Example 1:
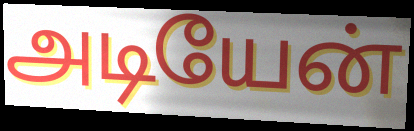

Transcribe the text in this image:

அடியேன்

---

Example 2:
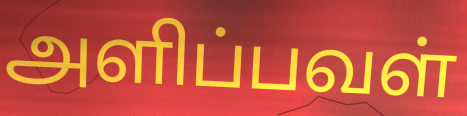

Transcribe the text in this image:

அளிப்பவள்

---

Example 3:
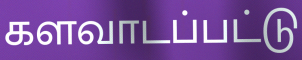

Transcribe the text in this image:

களவாடப்பட்டு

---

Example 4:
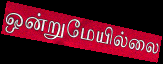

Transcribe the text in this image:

ஒன்றுமேயில்லை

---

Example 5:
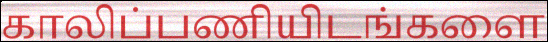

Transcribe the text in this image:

காலிப்பணியிடங்களை